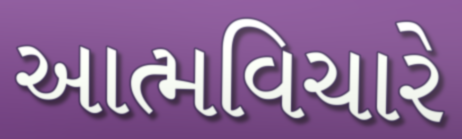
આત્મવિચારે